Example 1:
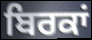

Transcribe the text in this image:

ਬਿਰਕਾਂ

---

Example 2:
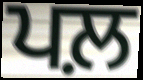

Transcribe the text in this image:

ਪਲ਼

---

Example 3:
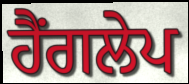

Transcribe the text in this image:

ਹੈਂਗਲੇਪ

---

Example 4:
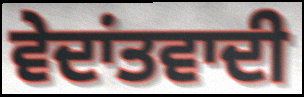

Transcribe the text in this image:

ਵੇਦਾਂਤਵਾਦੀ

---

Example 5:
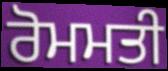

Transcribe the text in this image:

ਰੋਮਮਤੀ